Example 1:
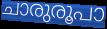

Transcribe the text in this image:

ചാരുരൂപാ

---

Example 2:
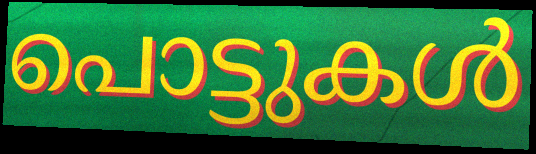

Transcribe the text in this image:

പൊട്ടുകൾ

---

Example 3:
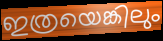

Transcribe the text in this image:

ഇത്രയെങ്കിലും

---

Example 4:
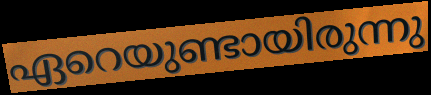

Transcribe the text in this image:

ഏറെയുണ്ടായിരുന്നു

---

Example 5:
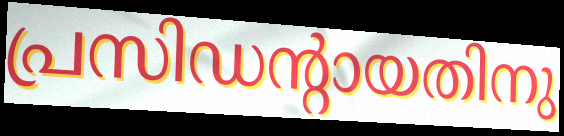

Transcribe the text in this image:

പ്രസിഡന്റായതിനു